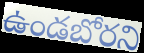
ఉండబోరని